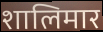
शालिमार